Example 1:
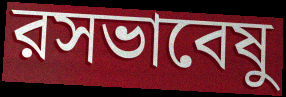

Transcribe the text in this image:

রসভাবেষু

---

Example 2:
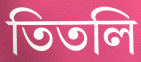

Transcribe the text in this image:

তিতলি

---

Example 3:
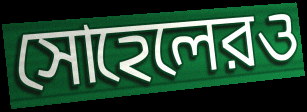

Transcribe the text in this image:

সোহেলেরও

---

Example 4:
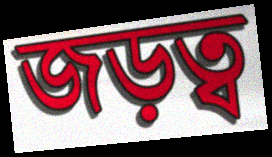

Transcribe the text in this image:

জড়ত্ব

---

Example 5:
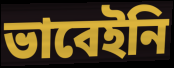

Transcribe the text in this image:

ভাবেইনি